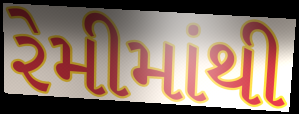
રેમીમાંથી